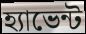
হ্যাভেন্ট